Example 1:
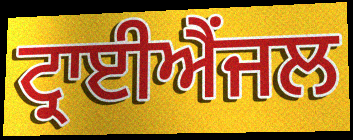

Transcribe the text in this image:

ਟ੍ਰਾਈਐਂਜਲ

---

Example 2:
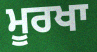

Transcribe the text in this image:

ਮੂਰਖਾ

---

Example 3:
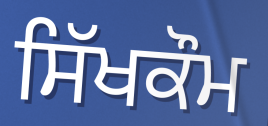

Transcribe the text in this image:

ਸਿੱਖਕੌਮ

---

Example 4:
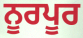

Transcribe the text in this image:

ਨੂਰਪੂਰ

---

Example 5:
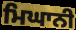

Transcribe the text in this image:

ਮਿਘਾਨੀ